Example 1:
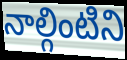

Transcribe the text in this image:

నాల్గింటిని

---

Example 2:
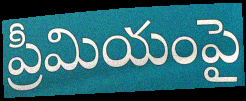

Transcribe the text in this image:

ప్రీమియంపై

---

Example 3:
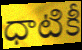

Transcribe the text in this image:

ధాటికీ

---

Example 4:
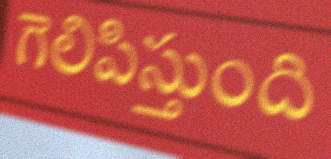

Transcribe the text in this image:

గెలిపిస్తుంది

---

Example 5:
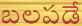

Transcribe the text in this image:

బలపడే